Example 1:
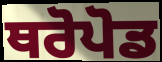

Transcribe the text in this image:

ਥਰੋਪੋਡ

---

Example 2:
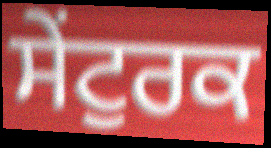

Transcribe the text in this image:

ਸੇਂਟੁਰਕ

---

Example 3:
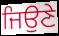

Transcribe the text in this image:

ਜਿਉਣੇ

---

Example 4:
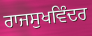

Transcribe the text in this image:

ਰਾਜਸੁਖਵਿੰਦਰ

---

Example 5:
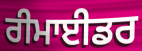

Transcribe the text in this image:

ਰੀਮਾਈਡਰ